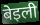
बेइली